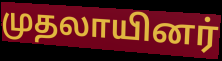
முதலாயினர்